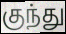
குந்து